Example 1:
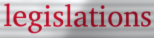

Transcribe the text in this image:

legislations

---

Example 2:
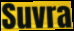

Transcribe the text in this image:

Suvra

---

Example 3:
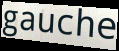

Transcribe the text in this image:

gauche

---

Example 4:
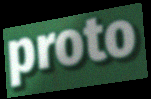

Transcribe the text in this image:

proto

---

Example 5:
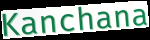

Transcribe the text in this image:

Kanchana